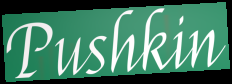
Pushkin